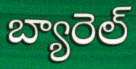
బ్యారెల్